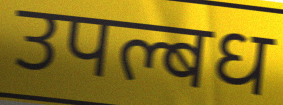
उपल्‍बध